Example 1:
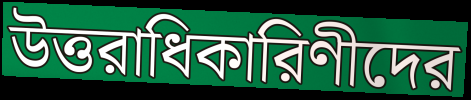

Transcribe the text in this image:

উত্তরাধিকারিণীদের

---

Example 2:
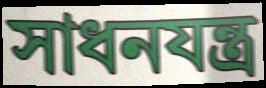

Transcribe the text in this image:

সাধনযন্ত্র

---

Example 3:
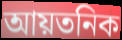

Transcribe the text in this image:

আয়তনিক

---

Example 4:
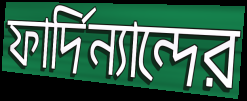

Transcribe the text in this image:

ফার্দিন্যান্দের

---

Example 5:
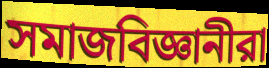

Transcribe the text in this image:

সমাজবিজ্ঞানীরা